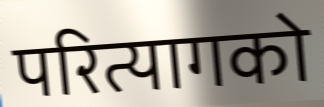
परित्यागको